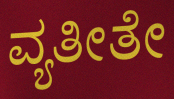
ವ್ಯತೀತೇ